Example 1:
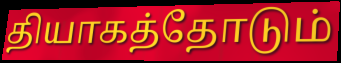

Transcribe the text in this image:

தியாகத்தோடும்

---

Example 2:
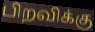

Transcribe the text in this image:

பிறவிக்கு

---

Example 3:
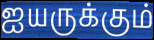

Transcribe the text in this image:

ஐயருக்கும்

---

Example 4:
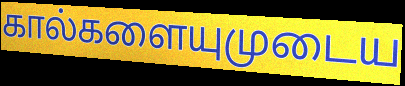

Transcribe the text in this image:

கால்களையுமுடைய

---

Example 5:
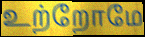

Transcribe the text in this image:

உற்றோமே